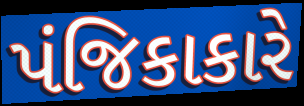
પંજિકાકારે